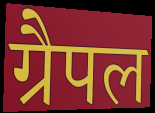
ग्रैपल